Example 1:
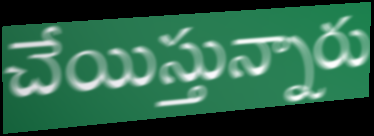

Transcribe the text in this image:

చేయిస్తున్నారు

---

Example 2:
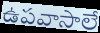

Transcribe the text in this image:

ఉపవాసాలే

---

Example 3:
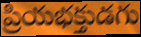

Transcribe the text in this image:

ప్రియభక్తుడగు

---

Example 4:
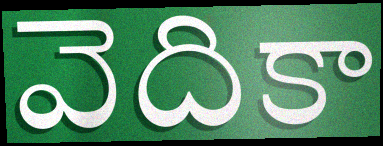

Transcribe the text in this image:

వెదికా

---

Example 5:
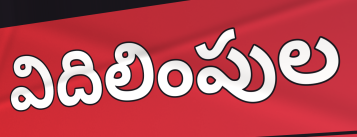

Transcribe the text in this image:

విదిలింపుల